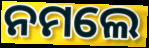
ନମଲେ